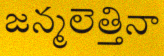
జన్మలెత్తినా